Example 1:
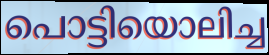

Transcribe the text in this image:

പൊട്ടിയൊലിച്ച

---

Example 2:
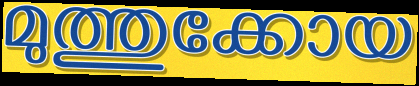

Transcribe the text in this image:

മുത്തുക്കോയ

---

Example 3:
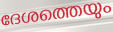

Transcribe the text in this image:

ദേശത്തെയും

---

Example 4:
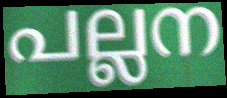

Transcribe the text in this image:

പല്ലന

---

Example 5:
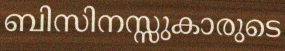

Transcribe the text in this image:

ബിസിനസ്സുകാരുടെ